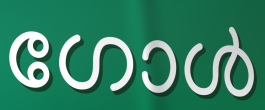
ഗോൾ